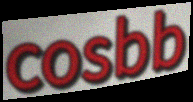
cosbb